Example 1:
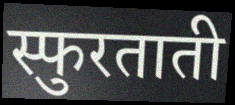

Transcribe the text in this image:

स्फुरताती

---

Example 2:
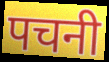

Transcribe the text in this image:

पचनी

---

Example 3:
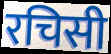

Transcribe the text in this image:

रचिसी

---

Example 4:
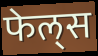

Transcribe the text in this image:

फेल्स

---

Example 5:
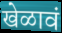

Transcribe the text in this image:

खेळावं